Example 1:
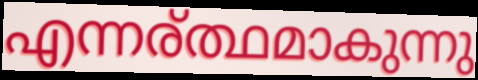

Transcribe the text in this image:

എന്നര്ത്ഥമാകുന്നു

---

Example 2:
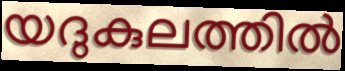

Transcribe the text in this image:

യദുകുലത്തിൽ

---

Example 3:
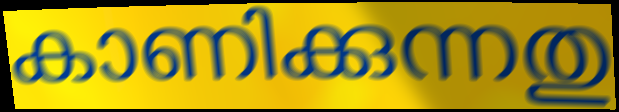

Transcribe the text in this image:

കാണിക്കുന്നതു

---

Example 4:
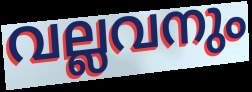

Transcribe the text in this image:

വല്ലവനും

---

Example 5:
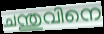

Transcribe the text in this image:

ചന്തുവിനെ